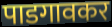
पाडगावकर